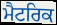
ਮੈਟਰਿਕ